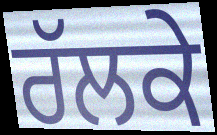
ਰੱਲਕੇ